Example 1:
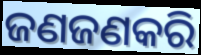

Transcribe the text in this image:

ଜଣଜଣକରି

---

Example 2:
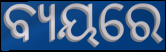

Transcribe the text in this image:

ବ୍ୟୟରେ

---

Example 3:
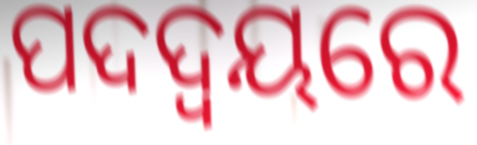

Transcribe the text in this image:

ପଦଦ୍ୱୟରେ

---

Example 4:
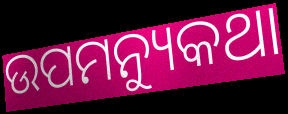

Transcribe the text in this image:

ଉପମନ୍ୟୁକଥା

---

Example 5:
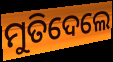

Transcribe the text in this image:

ମୁତିଦେଲେ